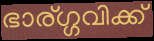
ഭാര്ഗ്ഗവിക്ക്